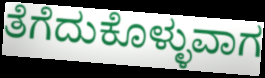
ತೆಗೆದುಕೊಳ್ಳುವಾಗ